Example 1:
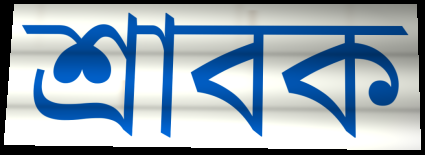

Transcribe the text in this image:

শ্রাবক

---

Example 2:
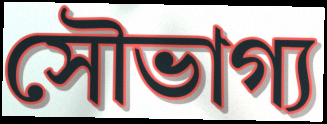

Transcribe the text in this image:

সৌভাগ্য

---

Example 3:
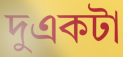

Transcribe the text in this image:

দুএকটা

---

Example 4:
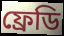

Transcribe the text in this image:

ফ্রেডি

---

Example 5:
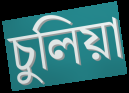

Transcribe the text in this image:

চুলিয়া